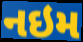
નઇમ